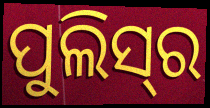
ପୁଲିସ୍‌ର